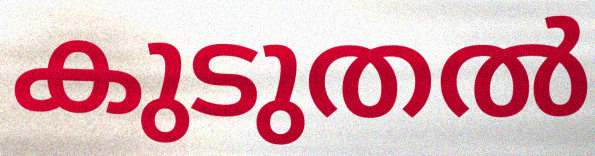
കുടുതൽ